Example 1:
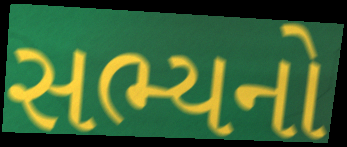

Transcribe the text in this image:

સભ્યનો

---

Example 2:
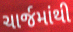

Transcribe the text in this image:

ચાર્જમાંથી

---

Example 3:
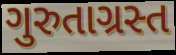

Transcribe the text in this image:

ગુરુતાગ્રસ્ત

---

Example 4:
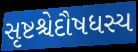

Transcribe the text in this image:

સૃષ્ટશ્ચેદૌષધસ્ય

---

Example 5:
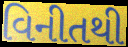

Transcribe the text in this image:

વિનીતથી